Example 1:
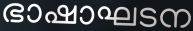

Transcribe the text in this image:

ഭാഷാഘടന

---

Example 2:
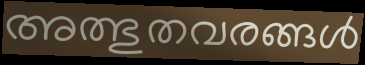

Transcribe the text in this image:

അത്ഭുതവരങ്ങൾ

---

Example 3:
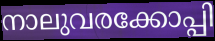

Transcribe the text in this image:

നാലുവരക്കോപ്പി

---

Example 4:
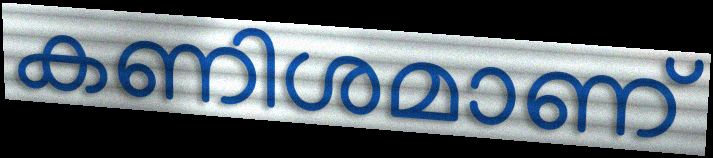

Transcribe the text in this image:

കണിശമാണ്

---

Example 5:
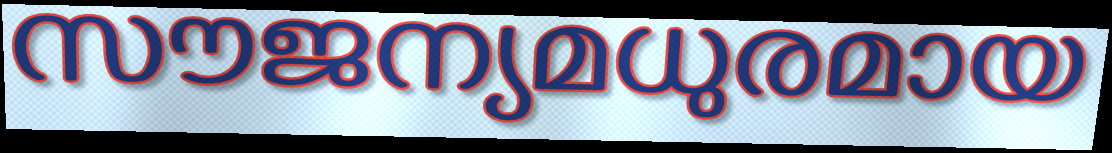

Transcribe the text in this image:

സൗജന്യമധുരമായ